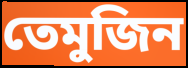
তেমুজিন